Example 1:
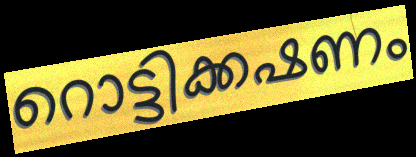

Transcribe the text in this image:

റൊട്ടിക്കഷണം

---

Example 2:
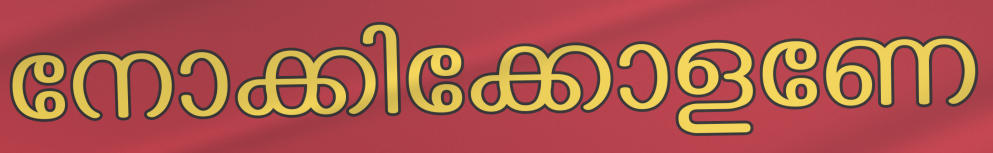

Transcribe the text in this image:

നോക്കിക്കോളണേ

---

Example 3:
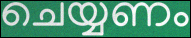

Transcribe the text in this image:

ചെയ്യണം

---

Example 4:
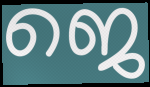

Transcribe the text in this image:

ജെ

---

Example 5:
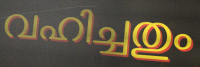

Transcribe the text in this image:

വഹിച്ചതും